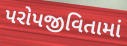
પરોપજીવિતામાં